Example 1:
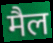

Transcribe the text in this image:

मैल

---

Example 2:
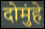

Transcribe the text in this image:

दोमुंहे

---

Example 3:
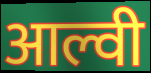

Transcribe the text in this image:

आल्वी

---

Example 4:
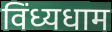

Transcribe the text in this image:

विंध्यधाम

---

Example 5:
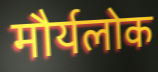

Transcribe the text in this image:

मौर्यलोक